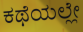
ಕಥೆಯಲ್ಲೇ